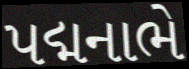
પદ્મનાભે